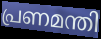
പ്രണമന്തി